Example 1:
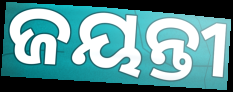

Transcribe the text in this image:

ଜୟନ୍ତୀ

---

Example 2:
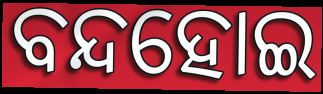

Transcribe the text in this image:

ବନ୍ଦହୋଇ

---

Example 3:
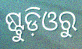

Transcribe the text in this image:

ଷ୍ଟୁଡ଼ିଓରୁ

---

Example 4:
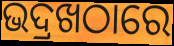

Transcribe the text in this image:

ଭଦ୍ରଖଠାରେ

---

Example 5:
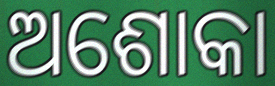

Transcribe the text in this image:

ଅଶୋକା